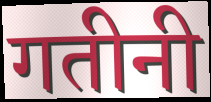
गतीनी